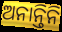
ଅନାନ୍ତିନି